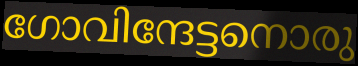
ഗോവിന്ദേട്ടനൊരു